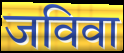
जविवा